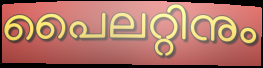
പൈലറ്റിനും